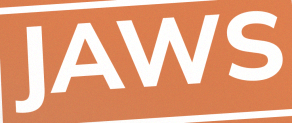
JAWS